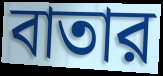
বাতার